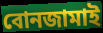
বোনজামাই